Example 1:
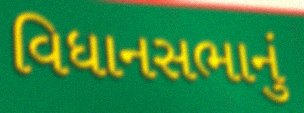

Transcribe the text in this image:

વિધાનસભાનું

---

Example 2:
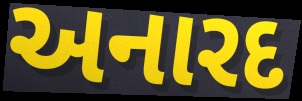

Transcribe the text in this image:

અનારદ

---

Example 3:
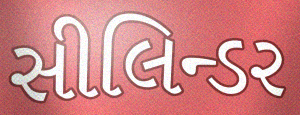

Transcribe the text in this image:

સીલિન્ડર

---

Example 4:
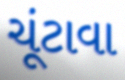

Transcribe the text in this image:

ચૂંટાવા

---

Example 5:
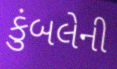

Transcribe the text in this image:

કુંબલેની